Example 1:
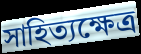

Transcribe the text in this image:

সাহিত্যক্ষেত্র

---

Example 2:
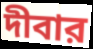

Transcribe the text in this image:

দীবার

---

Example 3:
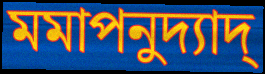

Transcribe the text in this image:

মমাপনুদ্যাদ্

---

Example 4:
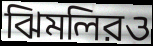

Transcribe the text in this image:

ঝিমলিরও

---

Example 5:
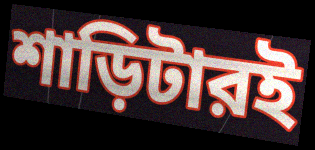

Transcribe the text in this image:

শাড়িটারই